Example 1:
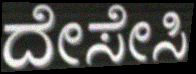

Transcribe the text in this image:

ದೇಸೇಸಿ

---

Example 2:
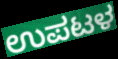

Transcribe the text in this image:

ಉಪಟಳ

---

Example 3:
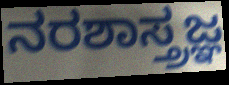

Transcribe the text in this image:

ನರಶಾಸ್ತ್ರಜ್ಞ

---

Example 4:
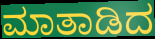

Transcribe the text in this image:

ಮಾತಾಡಿದ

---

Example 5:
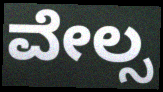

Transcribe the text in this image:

ವೇಲ್ಸ